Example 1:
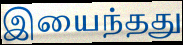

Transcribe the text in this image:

இயைந்தது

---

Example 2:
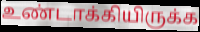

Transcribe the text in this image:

உண்டாக்கியிருக்க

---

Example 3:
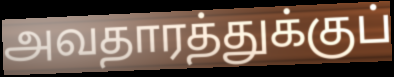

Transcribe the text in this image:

அவதாரத்துக்குப்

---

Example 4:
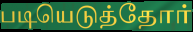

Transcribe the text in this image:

படியெடுத்தோர்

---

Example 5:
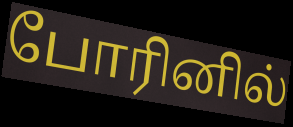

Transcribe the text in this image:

போரினில்